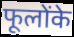
फूलोंके